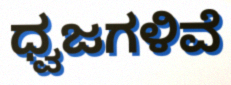
ಧ್ವಜಗಳಿವೆ